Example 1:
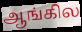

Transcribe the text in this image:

ஆங்கில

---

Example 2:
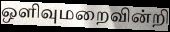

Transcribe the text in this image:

ஒளிவுமறைவின்றி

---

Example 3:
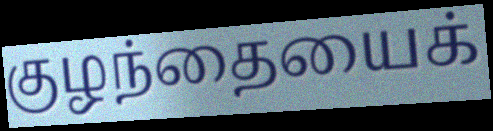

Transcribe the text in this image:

குழந்தையைக்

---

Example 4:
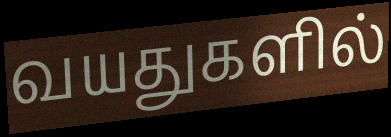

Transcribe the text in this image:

வயதுகளில்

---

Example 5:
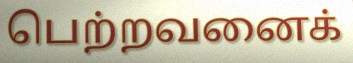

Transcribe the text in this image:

பெற்றவனைக்